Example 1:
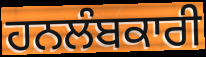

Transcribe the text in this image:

ਹਨਲੰਬਕਾਰੀ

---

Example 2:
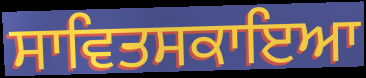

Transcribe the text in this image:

ਸਾਵਿਤਸਕਾਇਆ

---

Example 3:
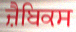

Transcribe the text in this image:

ਜ਼ੈਬਿਕਸ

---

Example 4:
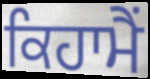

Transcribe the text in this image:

ਕਿਹਾਮੈਂ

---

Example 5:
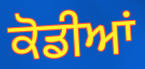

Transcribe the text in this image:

ਕੋਡੀਆਂ